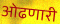
ओढणारी